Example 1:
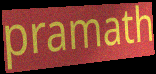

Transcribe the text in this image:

pramath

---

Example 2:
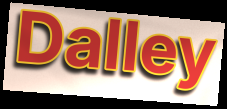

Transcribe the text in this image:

Dalley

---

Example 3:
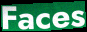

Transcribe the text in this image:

Faces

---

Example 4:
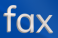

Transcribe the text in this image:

fax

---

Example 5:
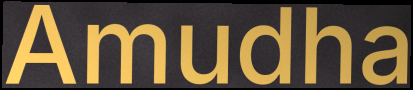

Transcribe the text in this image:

Amudha